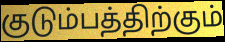
குடும்பத்திற்கும்